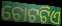
ଚୋଟଟିଏ